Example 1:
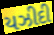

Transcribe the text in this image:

યઝીદી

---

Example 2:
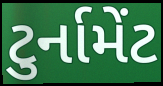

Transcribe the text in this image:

ટુર્નામેંટ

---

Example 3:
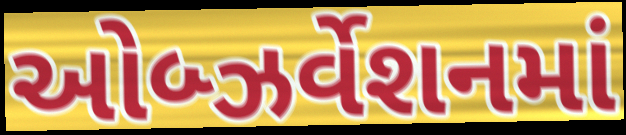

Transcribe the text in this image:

ઓબ્ઝર્વેશનમાં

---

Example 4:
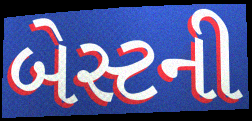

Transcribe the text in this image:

બેસ્ટની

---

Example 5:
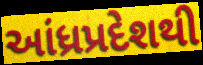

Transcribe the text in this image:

આંધ્રપ્રદેશથી